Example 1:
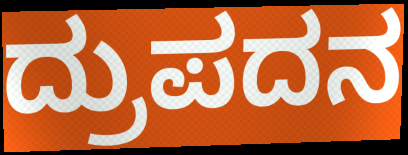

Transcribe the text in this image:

ದ್ರುಪದನ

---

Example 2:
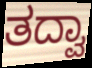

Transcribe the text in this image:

ತದ್ವಾ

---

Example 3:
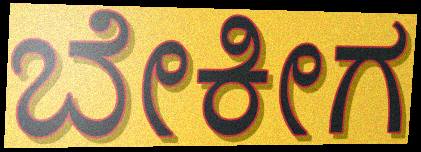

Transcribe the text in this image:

ಬೇಕೀಗ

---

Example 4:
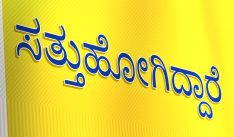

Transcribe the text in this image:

ಸತ್ತುಹೋಗಿದ್ದಾರೆ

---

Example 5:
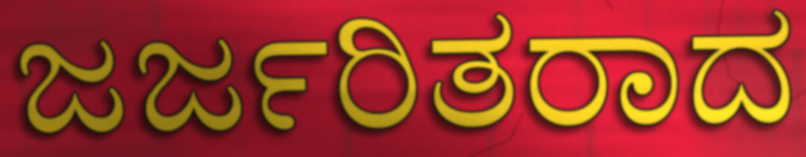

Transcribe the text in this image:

ಜರ್ಜರಿತರಾದ